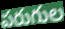
పరుగుల